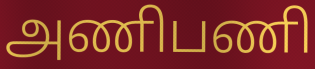
அணிபணி